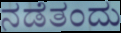
ನಡೆತಂದು